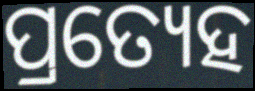
ପ୍ରତ୍ୟେହ